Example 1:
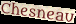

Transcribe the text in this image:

Chesneau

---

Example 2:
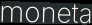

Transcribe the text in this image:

moneta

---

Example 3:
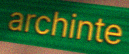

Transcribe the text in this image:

archinte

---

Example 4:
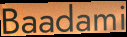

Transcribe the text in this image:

Baadami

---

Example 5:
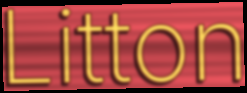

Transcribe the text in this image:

Litton